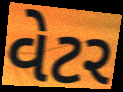
વેટર